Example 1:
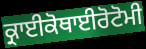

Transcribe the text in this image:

ਕ੍ਰਾਈਕੋਥਾਈਰੋਟੋਮੀ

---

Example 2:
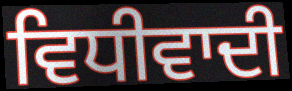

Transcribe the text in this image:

ਵਿਧੀਵਾਦੀ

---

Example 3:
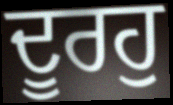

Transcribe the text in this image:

ਦੂਰਹੁ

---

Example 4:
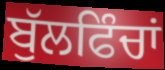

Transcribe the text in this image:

ਬੁੱਲਫਿੰਚਾਂ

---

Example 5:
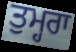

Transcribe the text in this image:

ਤੁਮ੍ਹਰਾ